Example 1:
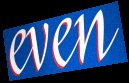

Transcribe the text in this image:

even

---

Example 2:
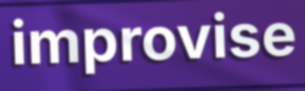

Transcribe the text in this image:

improvise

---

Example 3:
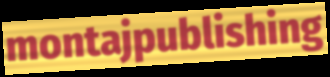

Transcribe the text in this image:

montajpublishing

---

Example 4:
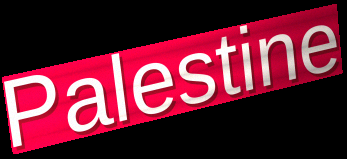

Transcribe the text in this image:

Palestine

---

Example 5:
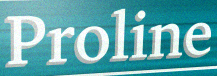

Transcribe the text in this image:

Proline